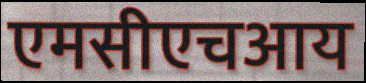
एमसीएचआय